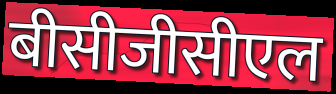
बीसीजीसीएल